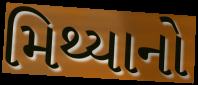
મિથ્યાનો